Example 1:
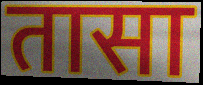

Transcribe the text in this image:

तासा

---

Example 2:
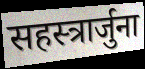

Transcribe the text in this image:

सहस्त्रार्जुना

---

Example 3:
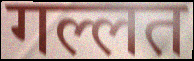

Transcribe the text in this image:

गल्लत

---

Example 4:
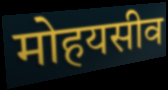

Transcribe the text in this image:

मोहयसीव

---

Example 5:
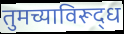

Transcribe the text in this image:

तुमच्याविरूद्ध